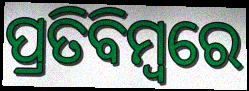
ପ୍ରତିବିମ୍ବରେ